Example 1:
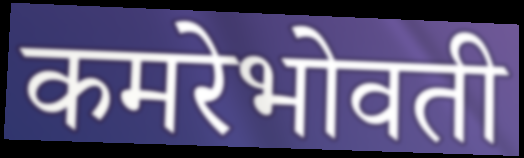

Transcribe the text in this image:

कमरेभोवती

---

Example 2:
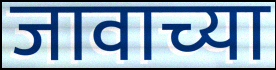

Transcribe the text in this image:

जावाच्या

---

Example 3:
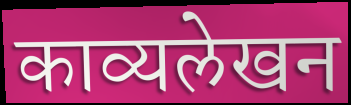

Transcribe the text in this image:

काव्यलेखन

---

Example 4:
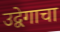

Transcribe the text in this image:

उद्वेगाचा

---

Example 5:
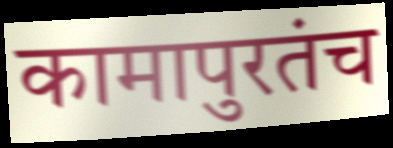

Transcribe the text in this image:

कामापुरतंच